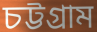
চট্টগ্রাম